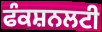
ਫੰਕਸ਼ਨਲਟੀ